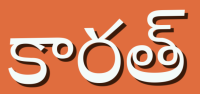
కారత్